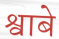
श्वाबे